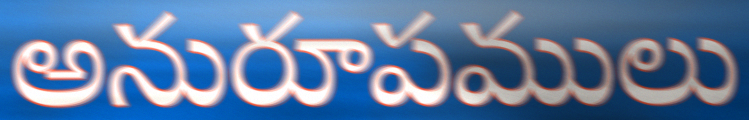
అనురూపములు